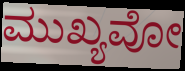
ಮುಖ್ಯವೋ